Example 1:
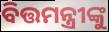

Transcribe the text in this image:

ବିତ୍ତମନ୍ତ୍ରୀଙ୍କୁ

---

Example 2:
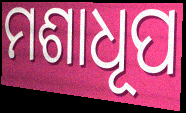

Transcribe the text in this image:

ମଶାଧୂପ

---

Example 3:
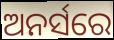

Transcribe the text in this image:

ଅନର୍ସରେ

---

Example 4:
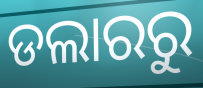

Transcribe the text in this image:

ଡଲାରରୁ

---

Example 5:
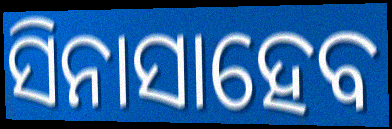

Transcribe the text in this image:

ସିନାସାହେବ